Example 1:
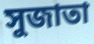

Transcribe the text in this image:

সুজাতা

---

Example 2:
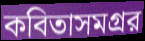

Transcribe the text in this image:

কবিতাসমগ্রর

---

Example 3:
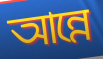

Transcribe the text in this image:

আন্নে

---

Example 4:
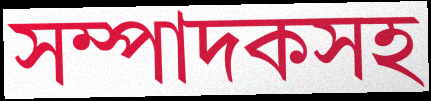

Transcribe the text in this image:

সম্পাদকসহ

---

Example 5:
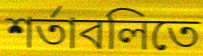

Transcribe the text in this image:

শর্তাবলিতে